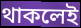
থাকলেই